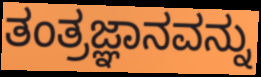
ತಂತ್ರಜ್ಞಾನವನ್ನು